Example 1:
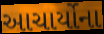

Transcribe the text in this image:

આચાર્યોના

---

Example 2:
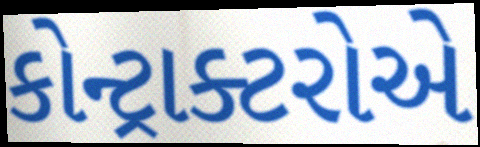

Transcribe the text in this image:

કોન્ટ્રાક્ટરોએ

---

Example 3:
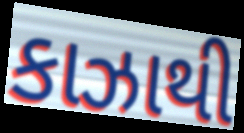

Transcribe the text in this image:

કાઝાથી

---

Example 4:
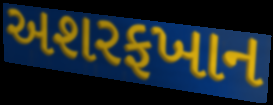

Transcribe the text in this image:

અશરફખાન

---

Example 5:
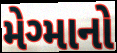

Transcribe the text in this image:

મેગ્માનો